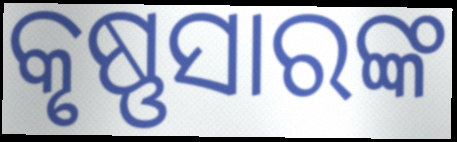
କୃଷ୍ଣସାରଙ୍କ